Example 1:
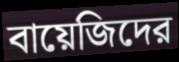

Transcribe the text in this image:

বায়েজিদের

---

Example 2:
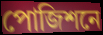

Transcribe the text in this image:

পোজিশনে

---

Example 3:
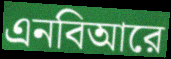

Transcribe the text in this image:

এনবিআরে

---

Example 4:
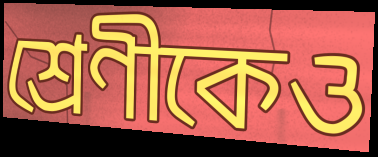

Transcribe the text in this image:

শ্রেণীকেও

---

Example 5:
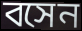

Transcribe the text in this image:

বসেন